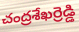
చంద్రశేఖర్రెడ్డి